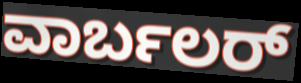
ವಾರ್ಬಲರ್